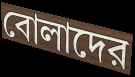
বোলাদের